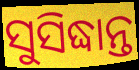
ସୁସିଦ୍ଧାନ୍ତ